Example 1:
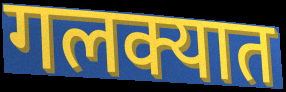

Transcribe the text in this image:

गलक्यात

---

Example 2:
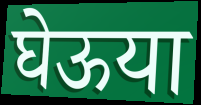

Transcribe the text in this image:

घेऊया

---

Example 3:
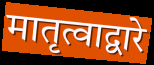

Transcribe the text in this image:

मातृत्वाद्वारे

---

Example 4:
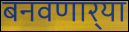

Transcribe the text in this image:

बनवणार्‍या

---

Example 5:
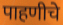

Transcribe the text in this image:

पाहणीचे